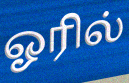
ஓரில்